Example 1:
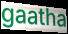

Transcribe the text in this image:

gaatha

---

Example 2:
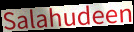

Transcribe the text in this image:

Salahudeen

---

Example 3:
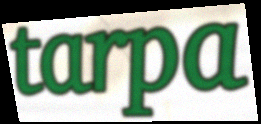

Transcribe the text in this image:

tarpa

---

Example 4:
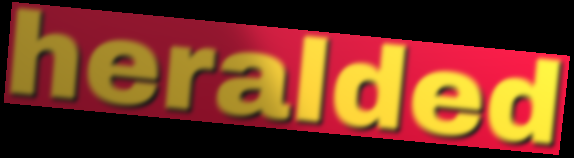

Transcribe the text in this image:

heralded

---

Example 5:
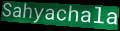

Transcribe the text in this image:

Sahyachala